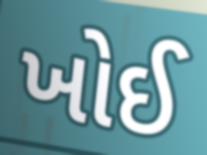
ખોઈ